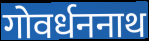
गोवर्धननाथ